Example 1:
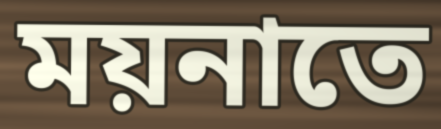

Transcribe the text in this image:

ময়নাতে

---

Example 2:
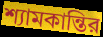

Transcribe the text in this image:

শ্যামকান্তির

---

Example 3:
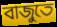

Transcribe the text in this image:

বাজুতে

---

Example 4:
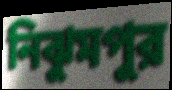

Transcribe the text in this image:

নিঝুমপুর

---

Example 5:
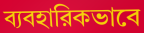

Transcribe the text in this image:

ব্যবহারিকভাবে